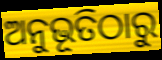
ଅନୁଭୂତିଠାରୁ